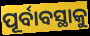
ପୂର୍ବାବସ୍ଥାକୁ